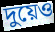
দুয়েও